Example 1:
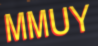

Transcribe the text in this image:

MMUY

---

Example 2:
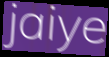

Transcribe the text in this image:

jaiye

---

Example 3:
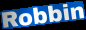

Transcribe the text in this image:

Robbin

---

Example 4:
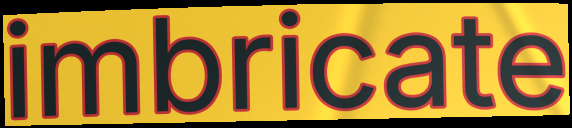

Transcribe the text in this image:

imbricate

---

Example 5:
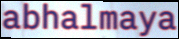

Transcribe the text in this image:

abhalmaya